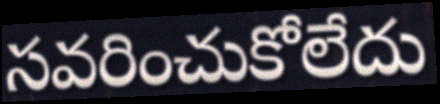
సవరించుకోలేదు